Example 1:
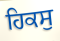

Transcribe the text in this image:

ਹਿਕਸੁ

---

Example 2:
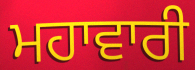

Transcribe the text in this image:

ਮਹਾਵਾਰੀ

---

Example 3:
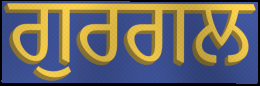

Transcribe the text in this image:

ਗੁਰਗਲ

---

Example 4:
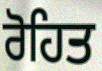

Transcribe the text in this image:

ਰੋਹਿਤ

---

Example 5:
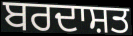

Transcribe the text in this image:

ਬਰਦਾਸ਼ਤ